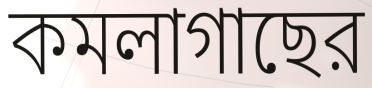
কমলাগাছের